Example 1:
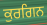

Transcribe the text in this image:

ਕੁਰਗਿਨ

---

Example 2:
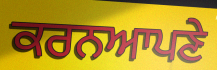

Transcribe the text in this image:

ਕਰਨਆਪਣੇ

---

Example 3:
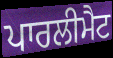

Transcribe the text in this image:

ਪਾਰਲੀਮੈਟ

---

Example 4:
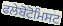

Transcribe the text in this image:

ਫਲੇਬੋਟੋਮਿਸਟ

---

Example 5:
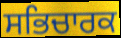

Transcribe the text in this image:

ਸਭਿਚਾਰਕ